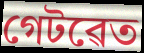
গেটৱেত